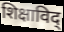
शिक्षाविद्